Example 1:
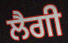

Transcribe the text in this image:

ਲੈਗੀ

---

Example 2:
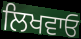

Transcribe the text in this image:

ਲਿਖਵਾਓ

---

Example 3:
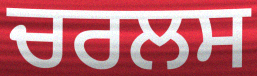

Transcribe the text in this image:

ਚਰਲਸ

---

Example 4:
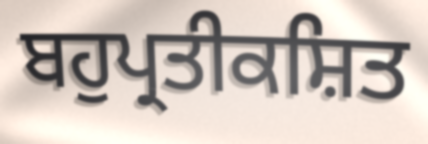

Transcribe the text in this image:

ਬਹੁਪ੍ਰਤੀਕਸ਼ਿਤ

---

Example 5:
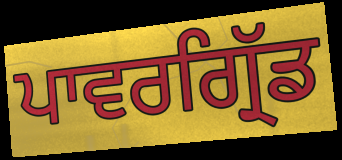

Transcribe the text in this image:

ਪਾਵਰਗ੍ਰਿੱਡ